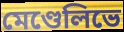
মেণ্ডেলিভে